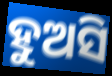
ହୁଅସି